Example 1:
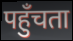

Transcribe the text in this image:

पहुँचता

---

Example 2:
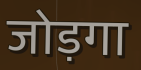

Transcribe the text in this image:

जोड़गा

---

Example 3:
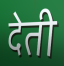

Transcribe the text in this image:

देती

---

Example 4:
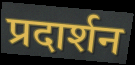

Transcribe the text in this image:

प्रदार्शन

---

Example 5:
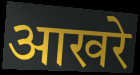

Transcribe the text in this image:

आखरे